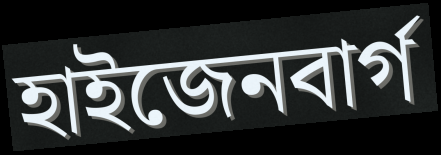
হাইজেনবাৰ্গ